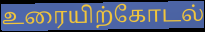
உரையிற்கோடல்